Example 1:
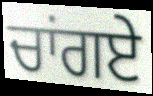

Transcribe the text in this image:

ਚਾਂਗਏ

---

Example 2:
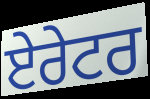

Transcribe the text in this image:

ਏਰੇਟਰ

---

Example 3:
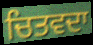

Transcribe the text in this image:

ਚਿਤਵਦਾ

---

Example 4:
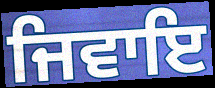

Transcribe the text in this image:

ਜਿਵਾਇ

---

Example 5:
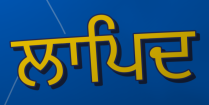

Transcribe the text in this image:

ਲਾਪਿਦ